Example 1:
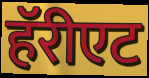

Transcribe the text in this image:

हॅरीएट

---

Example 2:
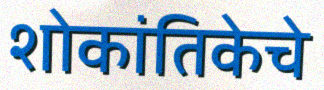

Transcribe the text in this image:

शोकांतिकेचे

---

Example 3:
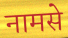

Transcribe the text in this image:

नामसे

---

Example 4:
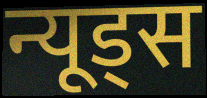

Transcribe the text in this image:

न्यूड्स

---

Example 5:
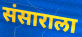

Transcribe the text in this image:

संसाराला